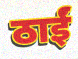
ठाईं